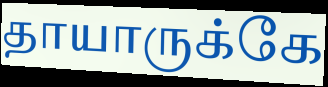
தாயாருக்கே